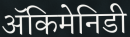
ॲकिमेनिडी